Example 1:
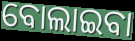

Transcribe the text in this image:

ବୋଲାଇବା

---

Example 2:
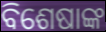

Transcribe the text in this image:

ବିଶେଷାଙ୍କ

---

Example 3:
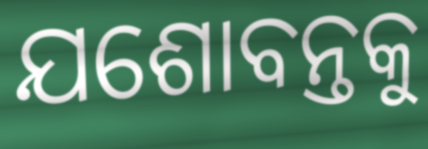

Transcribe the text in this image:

ଯଶୋବନ୍ତକୁ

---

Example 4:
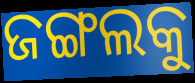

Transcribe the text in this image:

ଜଙ୍ଗଲକୁ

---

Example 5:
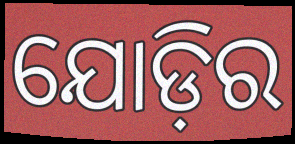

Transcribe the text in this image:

ଯୋଡ଼ିର